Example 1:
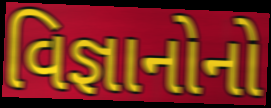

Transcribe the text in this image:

વિજ્ઞાનોનો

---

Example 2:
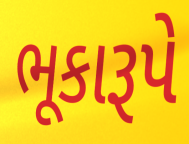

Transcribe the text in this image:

ભૂકારૂપે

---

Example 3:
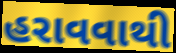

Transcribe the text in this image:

હરાવવાથી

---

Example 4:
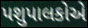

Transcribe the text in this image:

પશુપાલકોએ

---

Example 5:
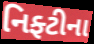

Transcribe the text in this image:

નિફ્ટીના